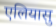
एलियासु